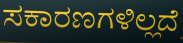
ಸಕಾರಣಗಳಿಲ್ಲದೆ